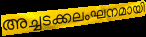
അച്ചടക്കലംഘനമായി